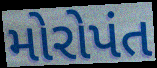
મોરોપંત